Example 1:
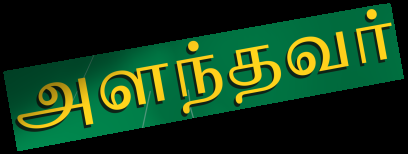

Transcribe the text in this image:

அளந்தவர்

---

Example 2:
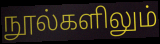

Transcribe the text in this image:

நூல்களிலும்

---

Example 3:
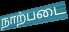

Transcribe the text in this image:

நாற்படை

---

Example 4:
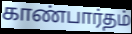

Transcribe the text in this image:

காண்பார்தம்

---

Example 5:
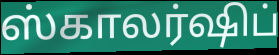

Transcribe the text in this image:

ஸ்காலர்ஷிப்